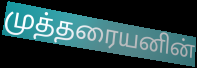
முத்தரையனின்